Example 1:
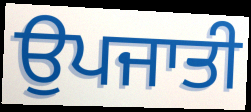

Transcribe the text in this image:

ਉਪਜਾਤੀ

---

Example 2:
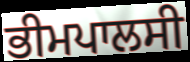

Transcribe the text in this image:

ਭੀਮਪਾਲਸੀ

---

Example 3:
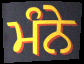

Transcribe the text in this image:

ਮੰਨੇ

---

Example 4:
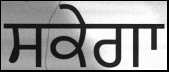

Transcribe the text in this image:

ਸਕੇਗਾ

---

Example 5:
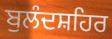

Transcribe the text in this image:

ਬੁਲੰਦਸ਼ਹਿਰ